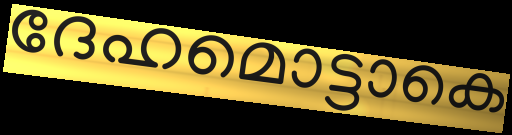
ദേഹമൊട്ടാകെ